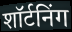
शॉर्टनिंग